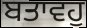
ਬਤਾਵਹੁ